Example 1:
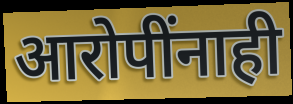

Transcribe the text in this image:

आरोपींनाही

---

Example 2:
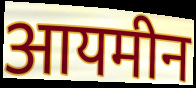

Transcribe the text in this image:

आयमीन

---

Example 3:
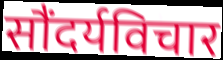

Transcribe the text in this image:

सौंदर्यविचार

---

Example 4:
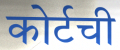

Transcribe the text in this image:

कोर्टची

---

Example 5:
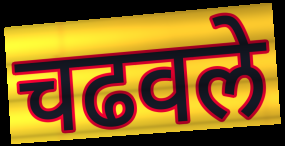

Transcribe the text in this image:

चढवले